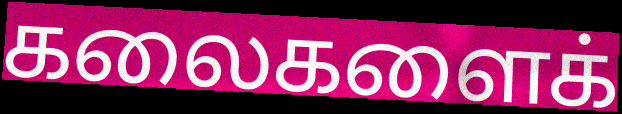
கலைகளைக்